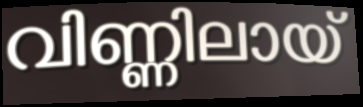
വിണ്ണിലായ്